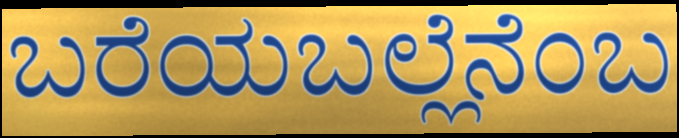
ಬರೆಯಬಲ್ಲೆನೆಂಬ